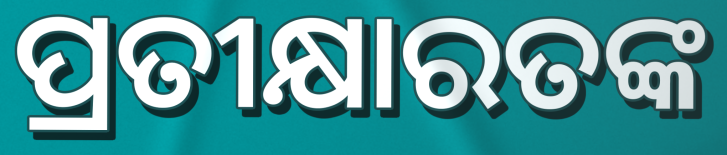
ପ୍ରତୀକ୍ଷାରତଙ୍କ